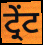
ਟ੍ਰੇਂਟ